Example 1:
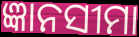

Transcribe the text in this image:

ଜ୍ଞାନସୀମା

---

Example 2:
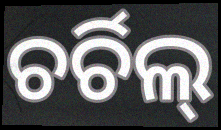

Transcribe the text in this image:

ଚର୍ଚିଲ୍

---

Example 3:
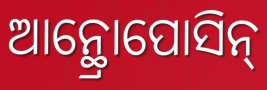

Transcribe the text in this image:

ଆନ୍ଥ୍ରୋପୋସିନ୍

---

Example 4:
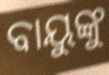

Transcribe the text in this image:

ବାୟୁଙ୍କୁ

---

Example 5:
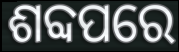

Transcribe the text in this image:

ଶବ୍ଦପରେ